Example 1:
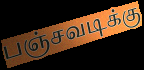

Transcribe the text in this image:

பஞ்சவடிக்கு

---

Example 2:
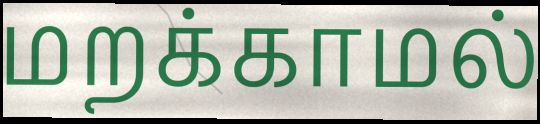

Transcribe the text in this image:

மறக்காமல்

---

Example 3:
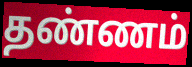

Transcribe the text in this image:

தண்ணம்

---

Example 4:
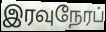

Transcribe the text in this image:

இரவுநேரப்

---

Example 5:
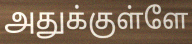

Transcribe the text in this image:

அதுக்குள்ளே